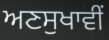
ਅਣਸੁਖਾਵੀਂ